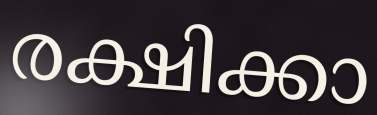
രക്ഷിക്കാ